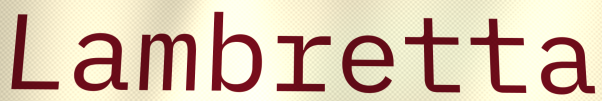
Lambretta